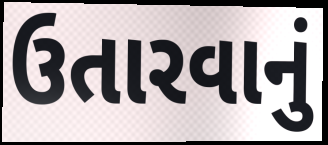
ઉતારવાનું